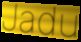
Jadu